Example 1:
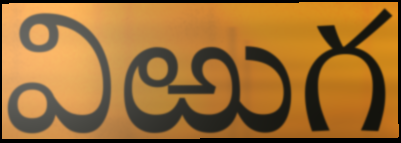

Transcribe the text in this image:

విఱుగ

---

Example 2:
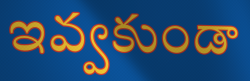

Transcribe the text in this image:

ఇవ్వకుండా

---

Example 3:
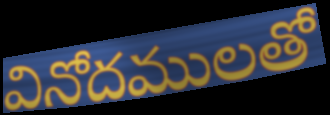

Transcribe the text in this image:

వినోదములతో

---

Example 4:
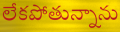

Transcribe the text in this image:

లేకపోతున్నాను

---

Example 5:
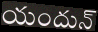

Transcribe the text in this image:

యందున్